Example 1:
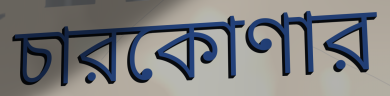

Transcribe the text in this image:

চারকোণার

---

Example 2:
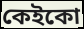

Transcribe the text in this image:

কেইকো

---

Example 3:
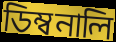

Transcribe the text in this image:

ডিম্বনালি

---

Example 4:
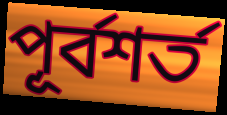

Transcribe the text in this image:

পূর্বশর্ত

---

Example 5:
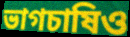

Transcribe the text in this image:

ভাগচাষিও